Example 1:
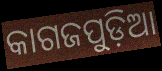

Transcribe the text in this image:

କାଗଜପୁଡ଼ିଆ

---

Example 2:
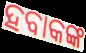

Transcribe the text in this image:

ହବାକଙ୍କ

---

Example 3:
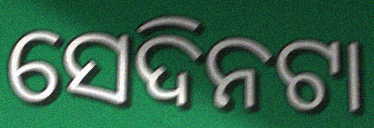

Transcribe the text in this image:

ସେଦିନଟା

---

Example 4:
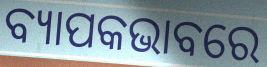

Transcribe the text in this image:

ବ୍ୟାପକଭାବରେ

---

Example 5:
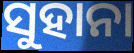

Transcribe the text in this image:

ସୁହାନା